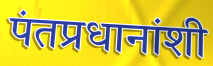
पंतप्रधानांशी